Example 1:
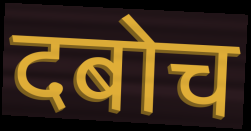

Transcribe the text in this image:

दबोच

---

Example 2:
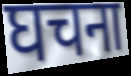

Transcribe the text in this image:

घचना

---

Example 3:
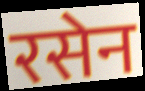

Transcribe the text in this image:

रसेन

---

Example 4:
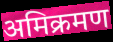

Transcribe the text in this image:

अमिक्रमण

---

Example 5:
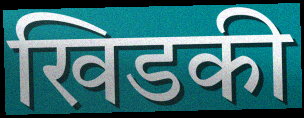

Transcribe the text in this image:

खिडकी